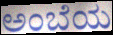
ಅಂಬೆಯ